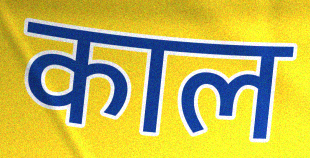
काल